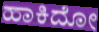
ಹಾಕಿದೋ